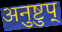
अनुष्टुप्